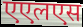
एएलएस